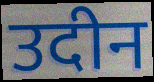
उदीन